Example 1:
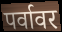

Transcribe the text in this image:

पर्वावर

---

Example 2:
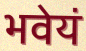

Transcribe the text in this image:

भवेयं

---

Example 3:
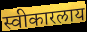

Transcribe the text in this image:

स्वीकारलाय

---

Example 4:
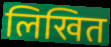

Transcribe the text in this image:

लिखित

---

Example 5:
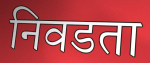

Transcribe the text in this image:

निवडता